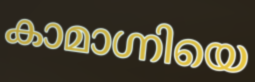
കാമാഗ്നിയെ